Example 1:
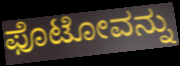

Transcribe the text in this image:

ಫೊಟೋವನ್ನು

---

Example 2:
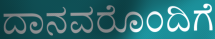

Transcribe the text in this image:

ದಾನವರೊಂದಿಗೆ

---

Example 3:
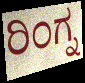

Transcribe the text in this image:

ರಿಂಗ್ನ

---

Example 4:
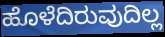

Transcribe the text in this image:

ಹೊಳೆದಿರುವುದಿಲ್ಲ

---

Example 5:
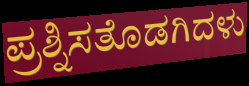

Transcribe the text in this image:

ಪ್ರಶ್ನಿಸತೊಡಗಿದಳು